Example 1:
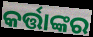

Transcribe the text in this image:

କର୍ତ୍ତାଙ୍କର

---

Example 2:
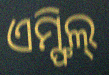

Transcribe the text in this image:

ଏମ୍ଫିଲ୍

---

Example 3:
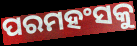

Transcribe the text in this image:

ପରମହଂସକୁ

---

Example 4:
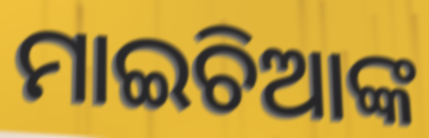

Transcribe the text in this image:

ମାଇଚିଆଙ୍କ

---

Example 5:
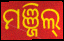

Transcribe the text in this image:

ମଞ୍ଜିଲ୍